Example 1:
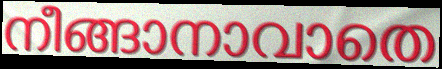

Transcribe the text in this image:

നീങ്ങാനാവാതെ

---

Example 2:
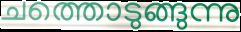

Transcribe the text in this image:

ചത്തൊടുങ്ങുന്നു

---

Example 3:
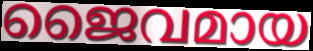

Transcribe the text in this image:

ജൈവമായ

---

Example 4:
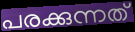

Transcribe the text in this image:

പരക്കുന്നത്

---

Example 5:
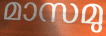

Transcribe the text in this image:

മാസമു